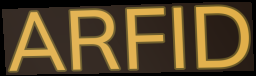
ARFID